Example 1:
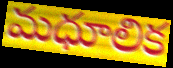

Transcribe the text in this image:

మధూలిక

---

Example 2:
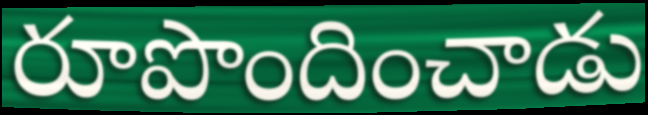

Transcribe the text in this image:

రూపొందించాడు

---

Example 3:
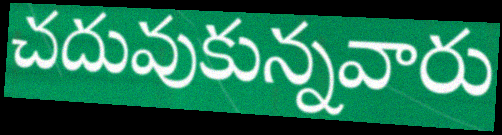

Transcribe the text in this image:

చదువుకున్నవారు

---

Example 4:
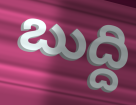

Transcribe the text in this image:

బుద్ది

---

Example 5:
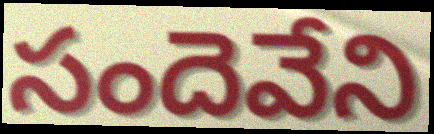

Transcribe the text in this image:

సందెవేని